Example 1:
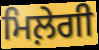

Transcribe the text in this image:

ਮਿਲ਼ੇਗੀ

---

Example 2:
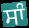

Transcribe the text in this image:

ਸਾੰ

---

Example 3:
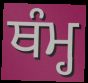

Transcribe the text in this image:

ਥੰਮ੍ਹ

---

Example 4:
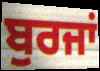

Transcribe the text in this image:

ਬੁਰਜਾਂ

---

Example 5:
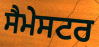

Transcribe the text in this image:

ਸੈਮੇਸਟਰ